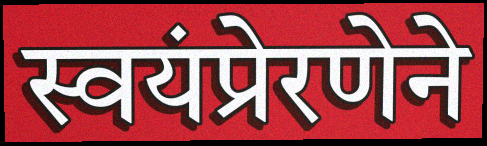
स्वयंप्रेरणेने